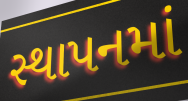
સ્થાપનમાં